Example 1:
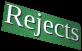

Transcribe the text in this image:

Rejects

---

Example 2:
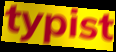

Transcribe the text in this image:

typist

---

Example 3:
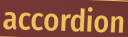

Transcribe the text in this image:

accordion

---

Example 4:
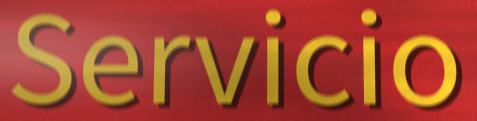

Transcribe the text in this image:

Servicio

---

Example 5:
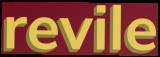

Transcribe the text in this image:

revile